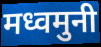
मध्वमुनी